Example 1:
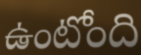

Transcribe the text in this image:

ఉంటోంది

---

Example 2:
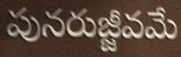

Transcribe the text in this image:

పునరుజ్జీవమే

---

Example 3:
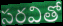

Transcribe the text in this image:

సరవితో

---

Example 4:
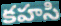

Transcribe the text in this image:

కహసి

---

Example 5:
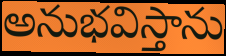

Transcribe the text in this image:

అనుభవిస్తాను